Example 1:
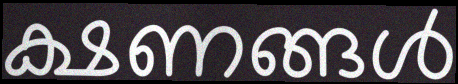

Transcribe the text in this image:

ക്ഷണങ്ങൾ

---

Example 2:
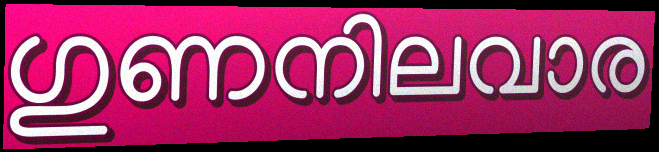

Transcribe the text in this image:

ഗുണനിലവാര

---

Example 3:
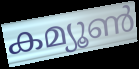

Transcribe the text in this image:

കമ്യൂൺ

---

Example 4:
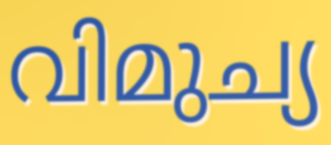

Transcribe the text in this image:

വിമുച്യ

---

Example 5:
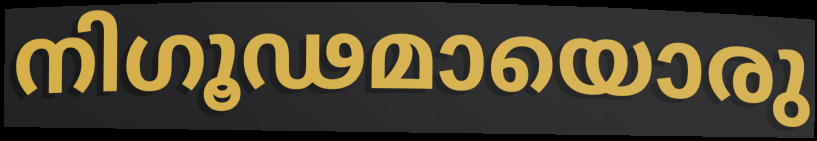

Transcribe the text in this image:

നിഗൂഢമായൊരു